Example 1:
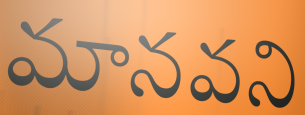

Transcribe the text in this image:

మానవని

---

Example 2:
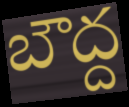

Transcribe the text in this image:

బౌద్ద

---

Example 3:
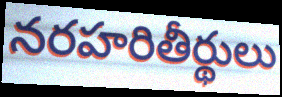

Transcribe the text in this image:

నరహరితీర్థులు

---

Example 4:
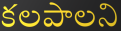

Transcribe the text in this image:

కలపాలని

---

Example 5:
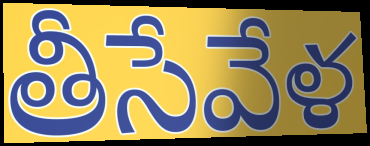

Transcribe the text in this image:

తీసేవేళ